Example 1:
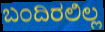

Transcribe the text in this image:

ಬಂದಿರಲಿಲ್ಲ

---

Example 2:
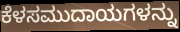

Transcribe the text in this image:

ಕೆಳಸಮುದಾಯಗಳನ್ನು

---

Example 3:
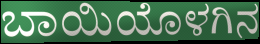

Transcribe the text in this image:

ಬಾಯಿಯೊಳಗಿನ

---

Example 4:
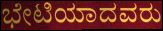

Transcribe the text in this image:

ಭೇಟಿಯಾದವರು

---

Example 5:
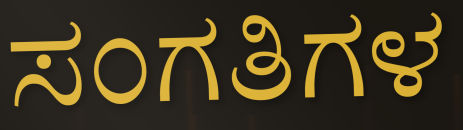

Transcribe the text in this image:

ಸಂಗತಿಗಳ